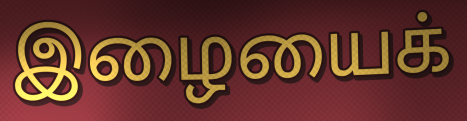
இழையைக்